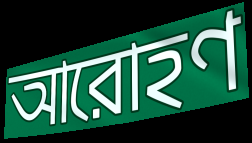
আরোহণ